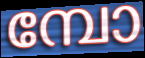
മ്പോ